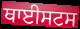
ਥਾਈਸਟਸ